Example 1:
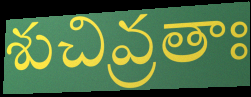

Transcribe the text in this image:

శుచివ్రతాః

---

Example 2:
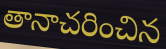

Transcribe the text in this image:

తానాచరించిన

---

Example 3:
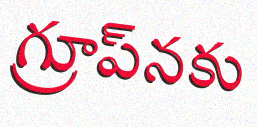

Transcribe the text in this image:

గ్రూప్‌నకు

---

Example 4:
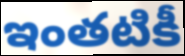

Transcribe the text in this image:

ఇంతటికీ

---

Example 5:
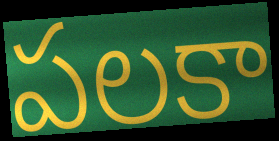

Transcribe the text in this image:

పలకా